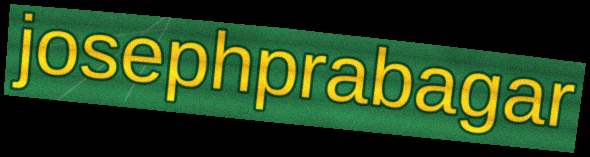
josephprabagar